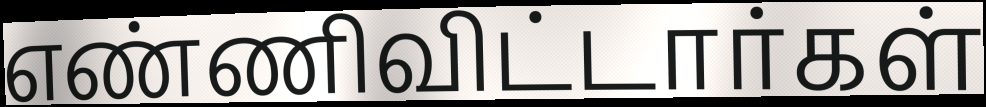
எண்ணிவிட்டார்கள்